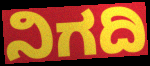
ನಿಗದಿ